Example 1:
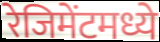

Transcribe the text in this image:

रेजिमेंटमध्ये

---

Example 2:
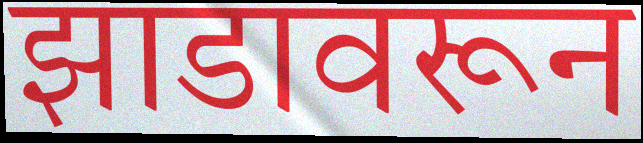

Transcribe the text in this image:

झाडावरून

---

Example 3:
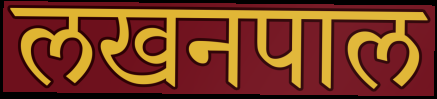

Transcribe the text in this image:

लखनपाल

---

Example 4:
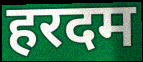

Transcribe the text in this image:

हरदम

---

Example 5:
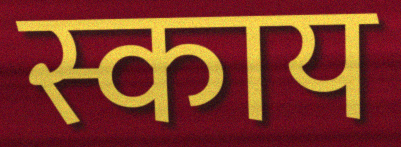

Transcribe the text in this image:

स्काय